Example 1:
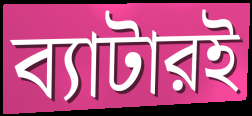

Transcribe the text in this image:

ব্যাটারই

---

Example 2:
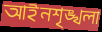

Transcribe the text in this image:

আইনশৃঙ্খলা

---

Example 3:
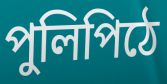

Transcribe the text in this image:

পুলিপিঠে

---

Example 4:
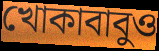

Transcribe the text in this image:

খোকাবাবুও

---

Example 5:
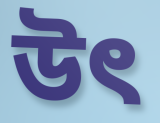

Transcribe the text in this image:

উৎ